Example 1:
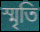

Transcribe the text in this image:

স্মৃতি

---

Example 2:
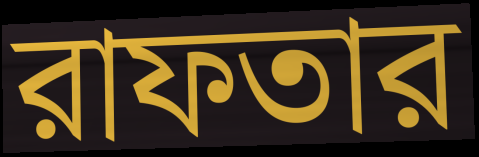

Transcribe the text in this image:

রাফতার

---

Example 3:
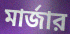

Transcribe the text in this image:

মার্জার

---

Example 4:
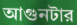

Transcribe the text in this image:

আগুনটার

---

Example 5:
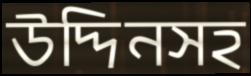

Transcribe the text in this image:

উদ্দিনসহ